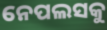
ନେପଲସକୁ